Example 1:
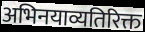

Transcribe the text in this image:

अभिनयाव्यतिरिक्त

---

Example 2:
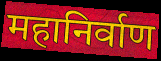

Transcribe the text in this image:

महानिर्वाण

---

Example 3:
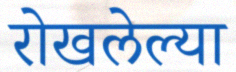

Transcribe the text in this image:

रोखलेल्या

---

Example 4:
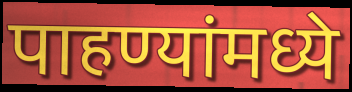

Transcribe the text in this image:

पाहण्यांमध्ये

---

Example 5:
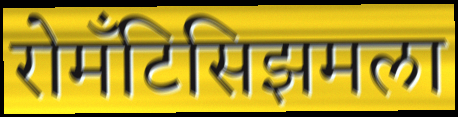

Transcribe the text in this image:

रोमँटिसिझमला